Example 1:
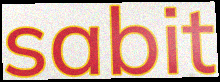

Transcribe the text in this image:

sabit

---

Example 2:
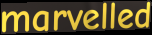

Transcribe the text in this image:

marvelled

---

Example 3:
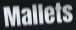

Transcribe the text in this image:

Mallets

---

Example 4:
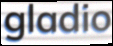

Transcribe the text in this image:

gladio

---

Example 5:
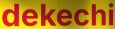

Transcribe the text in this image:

dekechi